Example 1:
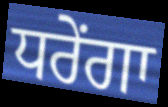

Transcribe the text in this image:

ਧਰੇਂਗਾ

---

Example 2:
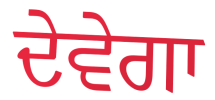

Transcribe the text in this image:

ਦੇਵੇਗਾ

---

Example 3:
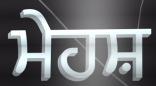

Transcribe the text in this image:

ਮੇਹਸ਼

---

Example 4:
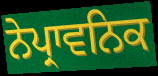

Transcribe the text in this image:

ਨੇਪ੍ਰਾਵਨਿਕ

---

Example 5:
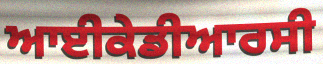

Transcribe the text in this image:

ਆਈਕੇਡੀਆਰਸੀ